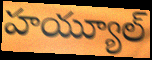
హయ్యూల్